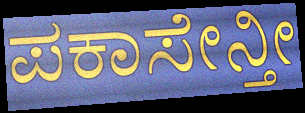
ಪಕಾಸೇನ್ತೀ